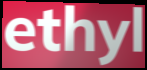
ethyl